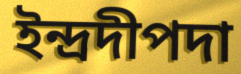
ইন্দ্রদীপদা